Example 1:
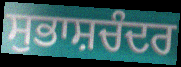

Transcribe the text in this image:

ਸੁਭਾਸ਼ਚੰਦਰ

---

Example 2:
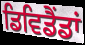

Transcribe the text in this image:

ਡਿਵਿਡੈਂਡਾਂ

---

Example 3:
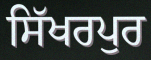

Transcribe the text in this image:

ਸਿੱਖਰਪੁਰ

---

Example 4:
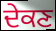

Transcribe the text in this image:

ਦੇਕਣ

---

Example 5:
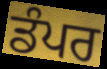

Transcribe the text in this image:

ਡੰਪਰ